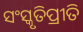
ସଂସ୍କୃତିପ୍ରୀତି